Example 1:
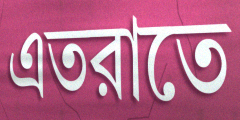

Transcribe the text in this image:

এতরাতে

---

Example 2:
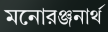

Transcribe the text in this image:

মনোরঞ্জনার্থ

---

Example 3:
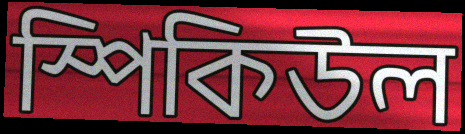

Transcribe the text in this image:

স্পিকিউল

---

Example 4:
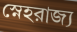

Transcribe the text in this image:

স্নেহরাজ্য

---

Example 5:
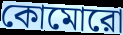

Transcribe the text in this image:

কোমোরো